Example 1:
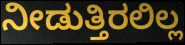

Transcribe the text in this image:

ನೀಡುತ್ತಿರಲಿಲ್ಲ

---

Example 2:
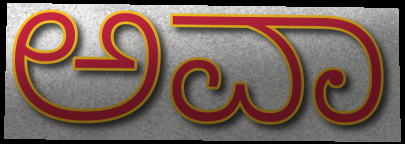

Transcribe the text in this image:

ಅವಾ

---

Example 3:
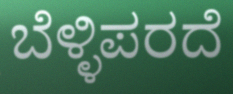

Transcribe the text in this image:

ಬೆಳ್ಳಿಪರದೆ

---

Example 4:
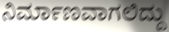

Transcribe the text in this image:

ನಿರ್ಮಾಣವಾಗಲಿದ್ದು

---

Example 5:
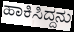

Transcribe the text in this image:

ಹಾಕಿಸಿದ್ದನು